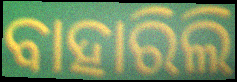
ବାହାରିଲି